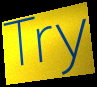
Try